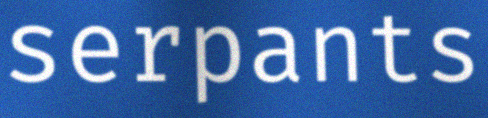
serpants